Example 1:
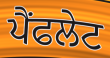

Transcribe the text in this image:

ਪੈਂਫਲੇਟ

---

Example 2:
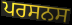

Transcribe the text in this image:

ਪਰਸਨਸ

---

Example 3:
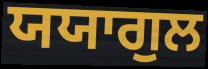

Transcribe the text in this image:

ਯਯਾਗੁਲ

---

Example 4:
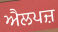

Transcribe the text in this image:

ਐਲਪਜ਼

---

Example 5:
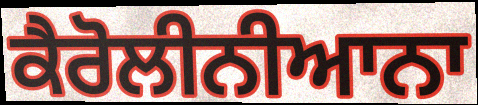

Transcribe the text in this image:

ਕੈਰੋਲੀਨੀਆਨਾ